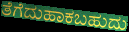
ತೆಗೆದುಹಾಕಬಹುದು